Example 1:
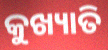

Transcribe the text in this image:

କୁଖ୍ୟାତି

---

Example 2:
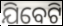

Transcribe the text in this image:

ଯିବେଟି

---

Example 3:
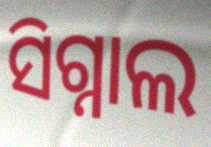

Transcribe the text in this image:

ସିଗ୍ନାଲ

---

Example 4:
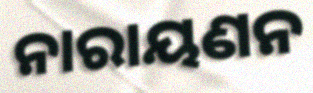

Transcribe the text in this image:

ନାରାୟଣନ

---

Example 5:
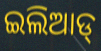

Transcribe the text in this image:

ଇଲିଆଡ୍